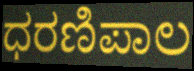
ಧರಣಿಪಾಲ